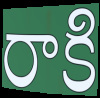
రాకి